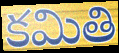
కమితి